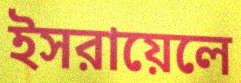
ইসরায়েলে